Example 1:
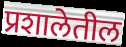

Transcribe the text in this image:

प्रशालेतील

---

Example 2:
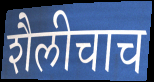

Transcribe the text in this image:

शैलीचाच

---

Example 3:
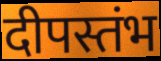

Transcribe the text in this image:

दीपस्तंभ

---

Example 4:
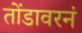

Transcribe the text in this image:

तोंडावरनं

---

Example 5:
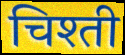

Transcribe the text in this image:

चिश्ती